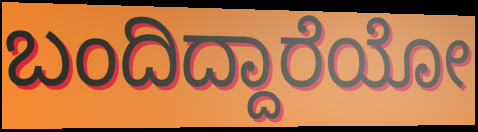
ಬಂದಿದ್ದಾರೆಯೋ